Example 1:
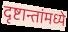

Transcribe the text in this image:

दृष्टान्तांमध्ये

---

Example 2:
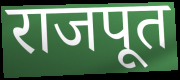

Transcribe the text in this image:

राजपूत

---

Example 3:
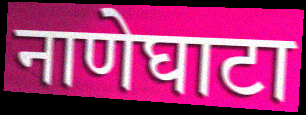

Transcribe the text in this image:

नाणेघाटा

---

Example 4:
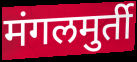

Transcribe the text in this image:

मंगलमुर्ती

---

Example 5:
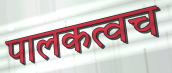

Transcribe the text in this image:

पालकत्वच